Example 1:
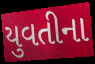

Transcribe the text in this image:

યુવતીના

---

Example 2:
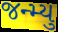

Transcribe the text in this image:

જન્મ્યુ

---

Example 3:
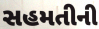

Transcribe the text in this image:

સહમતીની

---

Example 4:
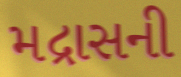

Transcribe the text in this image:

મદ્રાસની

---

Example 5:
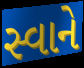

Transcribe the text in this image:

સ્વાને